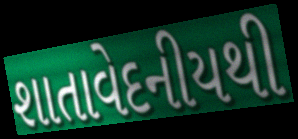
શાતાવેદનીયથી